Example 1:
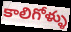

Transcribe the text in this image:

కాలిగోళ్ళు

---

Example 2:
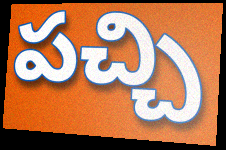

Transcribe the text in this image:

పచ్చి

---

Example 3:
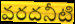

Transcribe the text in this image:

వరదనీటి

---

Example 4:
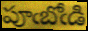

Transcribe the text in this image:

పూఁబోఁడి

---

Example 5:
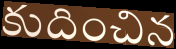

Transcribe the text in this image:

కుదించిన